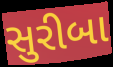
સુરીબા